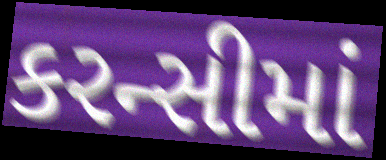
કરન્સીમાં